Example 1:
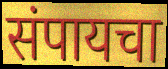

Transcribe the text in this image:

संपायचा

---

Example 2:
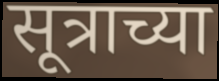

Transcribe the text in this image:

सूत्राच्या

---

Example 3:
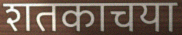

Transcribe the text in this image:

शतकाचया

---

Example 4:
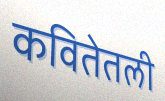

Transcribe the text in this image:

कवितेतली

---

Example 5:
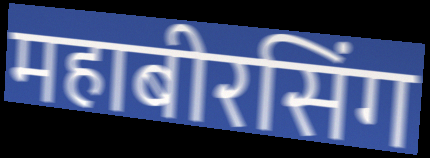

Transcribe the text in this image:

महाबीरसिंग